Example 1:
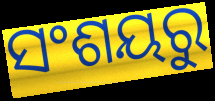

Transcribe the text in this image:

ସଂଶୟରୁ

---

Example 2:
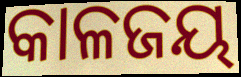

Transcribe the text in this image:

କାଳଜୟ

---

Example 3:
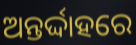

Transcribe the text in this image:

ଅନ୍ତର୍ଦ୍ଦାହରେ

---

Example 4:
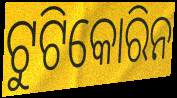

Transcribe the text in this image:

ଟୁଟିକୋରିନ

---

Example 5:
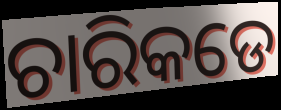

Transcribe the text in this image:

ଚାରିକଡେ